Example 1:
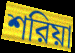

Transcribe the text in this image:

শরিয়া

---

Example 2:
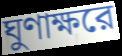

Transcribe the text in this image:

ঘুণাক্ষরে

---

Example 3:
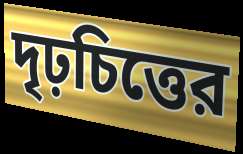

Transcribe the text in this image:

দৃঢ়চিত্তের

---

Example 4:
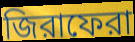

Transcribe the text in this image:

জিরাফেরা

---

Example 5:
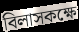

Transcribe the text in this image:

বিলাসকক্ষে